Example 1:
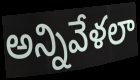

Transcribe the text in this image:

అన్నివేళలా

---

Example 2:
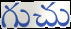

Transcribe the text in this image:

గుచు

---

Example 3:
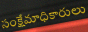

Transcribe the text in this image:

సంక్షేమాధికారులు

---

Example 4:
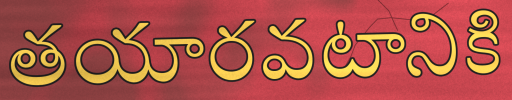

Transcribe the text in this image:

తయారవటానికి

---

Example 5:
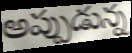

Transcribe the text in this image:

అప్పుడున్న